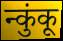
न्कुंकू